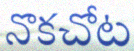
నొకచోట